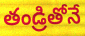
తండ్రితోనే